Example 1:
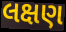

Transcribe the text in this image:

લક્ષણ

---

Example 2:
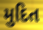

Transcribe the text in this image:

મુદિત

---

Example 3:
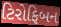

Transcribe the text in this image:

ટિરોફિબન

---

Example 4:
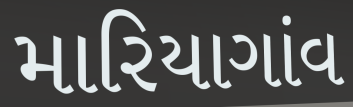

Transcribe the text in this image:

મારિયાગાંવ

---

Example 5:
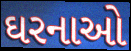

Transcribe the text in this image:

ઘરનાઓ